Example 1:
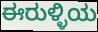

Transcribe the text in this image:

ಈರುಳ್ಳಿಯ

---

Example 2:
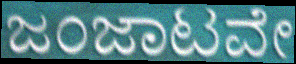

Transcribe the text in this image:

ಜಂಜಾಟವೇ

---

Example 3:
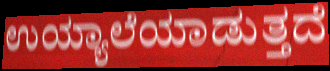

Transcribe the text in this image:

ಉಯ್ಯಾಲೆಯಾಡುತ್ತದೆ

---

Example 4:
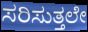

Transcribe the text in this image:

ಸರಿಸುತ್ತಲೇ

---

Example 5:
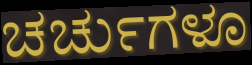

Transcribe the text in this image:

ಚರ್ಚುಗಳೂ